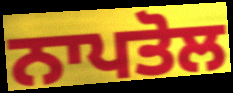
ਨਾਪਤੋਲ